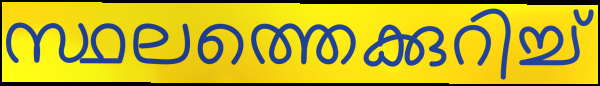
സ്ഥലത്തെക്കുറിച്ച്